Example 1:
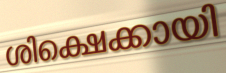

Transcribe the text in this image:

ശിക്ഷെക്കായി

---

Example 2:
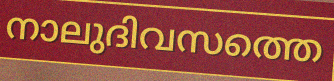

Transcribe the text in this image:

നാലുദിവസത്തെ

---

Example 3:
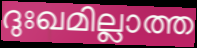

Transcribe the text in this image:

ദുഃഖമില്ലാത്ത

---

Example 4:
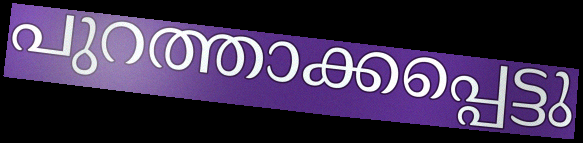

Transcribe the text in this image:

പുറത്താക്കപ്പെട്ടു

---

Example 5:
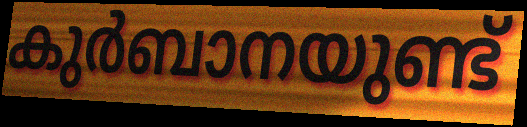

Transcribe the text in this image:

കുർബാനയുണ്ട്